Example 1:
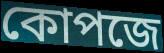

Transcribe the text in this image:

কোপজে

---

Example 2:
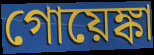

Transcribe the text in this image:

গোয়েঙ্কা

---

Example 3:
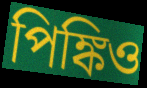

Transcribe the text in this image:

পিঙ্কিও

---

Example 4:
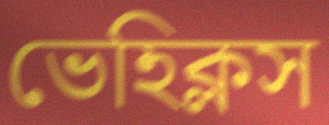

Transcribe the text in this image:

ভেহিক্লস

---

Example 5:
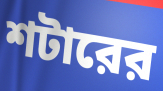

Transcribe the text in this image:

শটারের